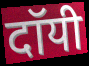
दॉयी